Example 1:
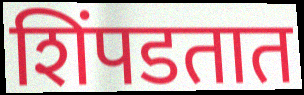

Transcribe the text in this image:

शिंपडतात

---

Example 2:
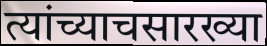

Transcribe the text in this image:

त्यांच्याचसारख्या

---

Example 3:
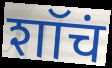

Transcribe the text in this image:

शॉचं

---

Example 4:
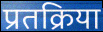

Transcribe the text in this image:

प्रतक्रिया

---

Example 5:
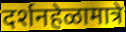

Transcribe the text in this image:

दर्शनहेळामात्रे